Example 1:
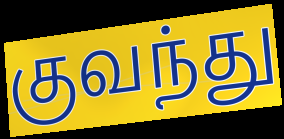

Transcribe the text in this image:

குவந்து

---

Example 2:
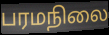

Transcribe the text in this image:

பரமநிலை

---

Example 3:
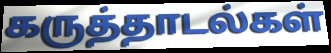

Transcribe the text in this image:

கருத்தாடல்கள்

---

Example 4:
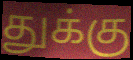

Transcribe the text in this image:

துக்கு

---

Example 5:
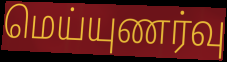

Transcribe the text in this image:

மெய்யுணர்வு